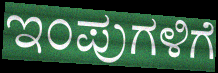
ಇಂಪುಗಳಿಗೆ